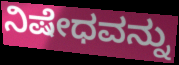
ನಿಷೇಧವನ್ನು